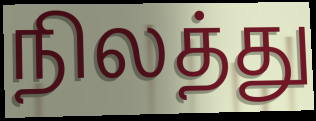
நிலத்து